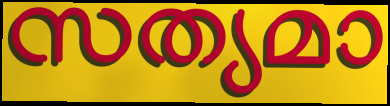
സത്യമാ